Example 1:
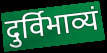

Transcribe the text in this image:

दुर्विभाव्यं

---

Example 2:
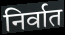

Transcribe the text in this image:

निर्वात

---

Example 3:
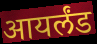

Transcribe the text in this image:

आयर्लंड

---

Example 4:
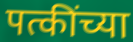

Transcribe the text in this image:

पत्कींच्या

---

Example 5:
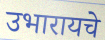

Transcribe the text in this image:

उभारायचे